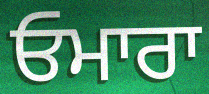
ਓਮਾਰਾ